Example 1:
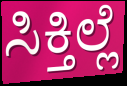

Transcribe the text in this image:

ಸಿಕ್ತಿಲ್ಲೆ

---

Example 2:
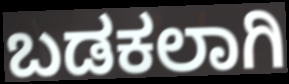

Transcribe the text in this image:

ಬಡಕಲಾಗಿ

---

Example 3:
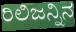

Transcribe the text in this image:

ರಿಲಿಜನ್ನಿನ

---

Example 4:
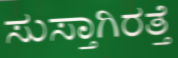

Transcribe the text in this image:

ಸುಸ್ತಾಗಿರತ್ತೆ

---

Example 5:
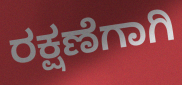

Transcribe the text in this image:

ರಕ್ಷಣೆಗಾಗಿ